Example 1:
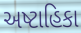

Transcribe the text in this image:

અષ્ટાહિકા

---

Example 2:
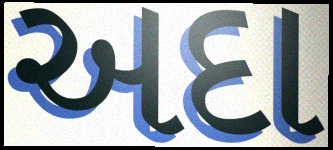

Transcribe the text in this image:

અદા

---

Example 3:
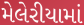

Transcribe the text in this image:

મેલેરીયામાં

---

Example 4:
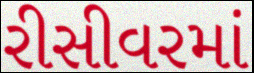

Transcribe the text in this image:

રીસીવરમાં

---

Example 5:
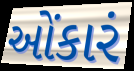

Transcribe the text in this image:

ઓંકારં